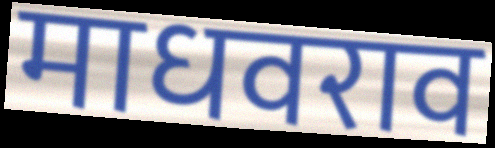
माधवराव